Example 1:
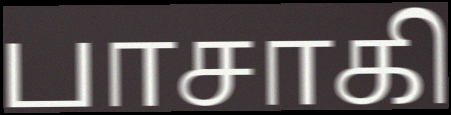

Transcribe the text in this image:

பாசாகி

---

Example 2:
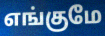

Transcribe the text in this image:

எங்குமே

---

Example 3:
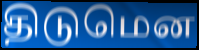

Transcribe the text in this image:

திடுமென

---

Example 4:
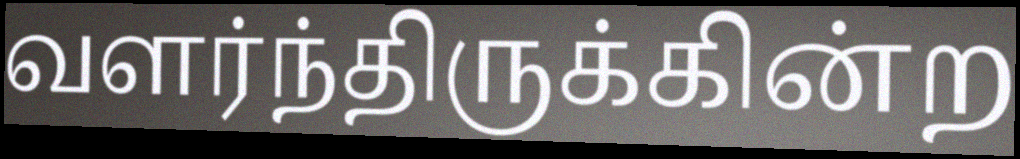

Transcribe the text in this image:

வளர்ந்திருக்கின்ற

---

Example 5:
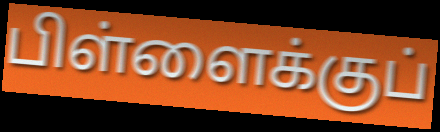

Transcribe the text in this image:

பிள்ளைக்குப்